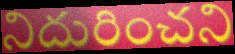
నిదురించని